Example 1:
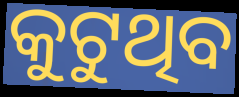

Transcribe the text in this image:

କୁଟୁଥିବ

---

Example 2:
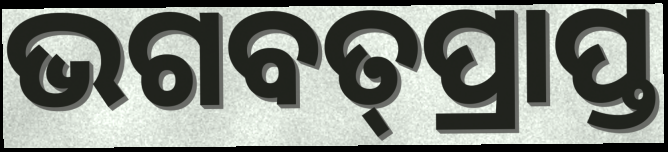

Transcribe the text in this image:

ଭଗବତ୍‌ପ୍ରାପ୍ତ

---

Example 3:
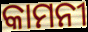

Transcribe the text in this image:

କାମନୀ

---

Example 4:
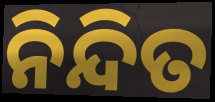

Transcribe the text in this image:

ନିନ୍ଦିତ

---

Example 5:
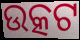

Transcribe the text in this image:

ଉତ୍କଟ